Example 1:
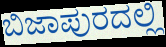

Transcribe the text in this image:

ಬಿಜಾಪುರದಲ್ಲಿ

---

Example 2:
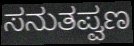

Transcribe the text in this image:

ಸನುತಪ್ವಣ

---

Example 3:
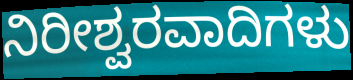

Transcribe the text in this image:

ನಿರೀಶ್ವರವಾದಿಗಳು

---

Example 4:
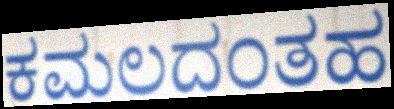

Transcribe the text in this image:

ಕಮಲದಂತಹ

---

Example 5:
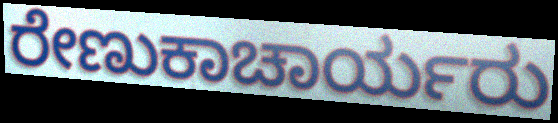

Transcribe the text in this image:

ರೇಣುಕಾಚಾರ್ಯರು